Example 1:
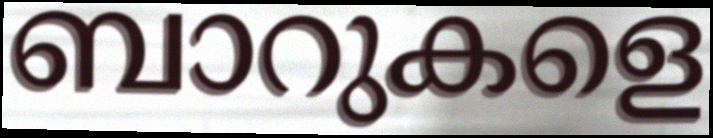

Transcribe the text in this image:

ബാറുകളെ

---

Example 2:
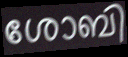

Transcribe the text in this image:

ശോബി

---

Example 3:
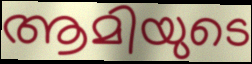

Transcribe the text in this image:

ആമിയുടെ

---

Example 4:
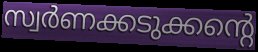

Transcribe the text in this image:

സ്വർണക്കടുക്കന്റെ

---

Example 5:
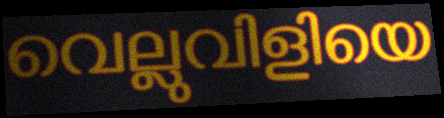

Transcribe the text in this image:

വെല്ലുവിളിയെ